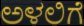
ಅಳಲಿಗೆ